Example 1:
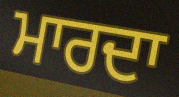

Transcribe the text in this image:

ਮਾਰਦਾ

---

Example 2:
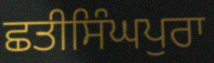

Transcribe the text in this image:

ਛਤੀਸਿੰਘਪੁਰਾ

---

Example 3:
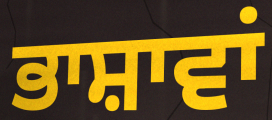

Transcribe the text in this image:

ਭਾਸ਼ਾਵਾਂ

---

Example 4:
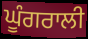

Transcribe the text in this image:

ਘੂੰਗਰਾਲੀ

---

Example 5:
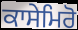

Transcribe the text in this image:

ਕਾਸੇਮਿਰੋ